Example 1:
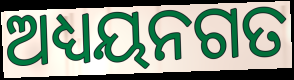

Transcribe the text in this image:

ଅଧ୍ୟୟନଗତ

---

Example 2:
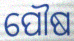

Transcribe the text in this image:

ପୌଷ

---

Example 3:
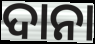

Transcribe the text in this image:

ଦାନା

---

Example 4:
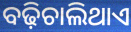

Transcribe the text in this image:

ବଢ଼ିଚାଲିଥାଏ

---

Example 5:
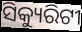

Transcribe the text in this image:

ସିକ୍ୟୁରିଟୀ